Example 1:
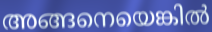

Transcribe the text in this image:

അങ്ങനെയെങ്കിൽ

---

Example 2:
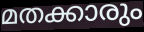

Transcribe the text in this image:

മതക്കാരും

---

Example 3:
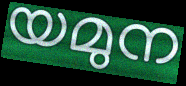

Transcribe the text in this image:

യമുന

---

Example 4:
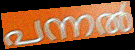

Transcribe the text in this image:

പന്നൽ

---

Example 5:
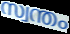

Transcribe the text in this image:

സ്വന്തം